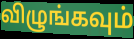
விழுங்கவும்